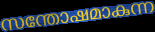
സന്തോഷമാകുന്ന